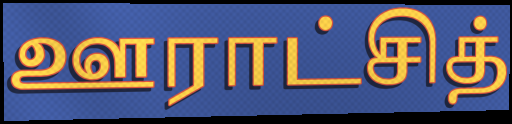
ஊராட்சித்